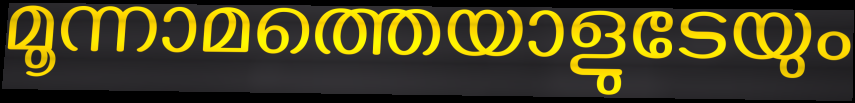
മൂന്നാമത്തെയാളുടേയും